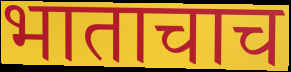
भाताचाच